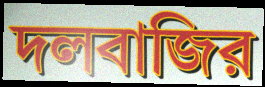
দলবাজির